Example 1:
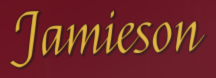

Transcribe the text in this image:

Jamieson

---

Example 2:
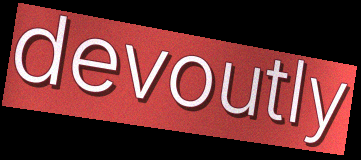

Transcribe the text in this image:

devoutly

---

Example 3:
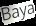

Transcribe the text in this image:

Baya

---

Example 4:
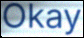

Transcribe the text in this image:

Okay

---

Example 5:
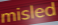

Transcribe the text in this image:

misled